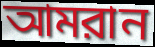
আমরান